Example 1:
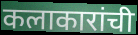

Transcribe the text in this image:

कलाकारांची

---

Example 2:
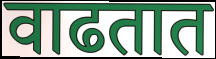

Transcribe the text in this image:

वाढतात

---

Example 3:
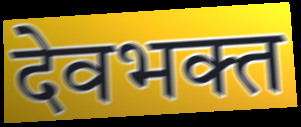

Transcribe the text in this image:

देवभक्त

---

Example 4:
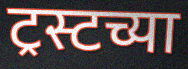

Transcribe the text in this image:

ट्रस्टच्या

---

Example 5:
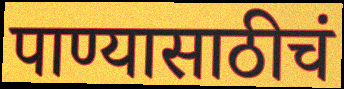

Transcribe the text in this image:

पाण्यासाठीचं